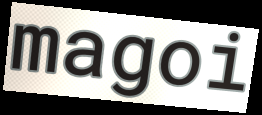
magoi